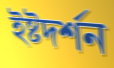
ইষ্টদর্শন